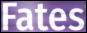
Fates